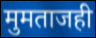
मुमताजही